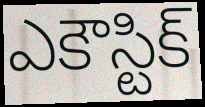
ఎకౌస్టిక్